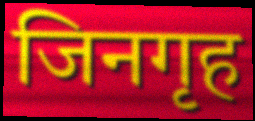
जिनगृह